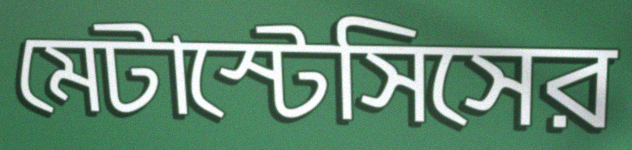
মেটাস্টেসিসের